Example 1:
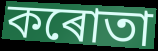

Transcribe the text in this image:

কৰোতা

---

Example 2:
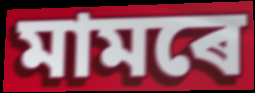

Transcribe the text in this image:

মামৰে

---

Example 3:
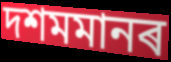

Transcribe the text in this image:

দশমমানৰ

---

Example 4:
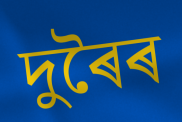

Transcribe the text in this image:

দুৰৈৰ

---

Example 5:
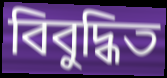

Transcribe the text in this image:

বিবুদ্ধিত